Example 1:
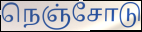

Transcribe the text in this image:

நெஞ்சோடு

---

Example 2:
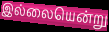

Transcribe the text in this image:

இல்லையென்று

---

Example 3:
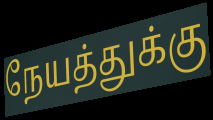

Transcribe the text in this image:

நேயத்துக்கு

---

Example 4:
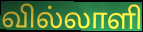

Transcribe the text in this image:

வில்லாளி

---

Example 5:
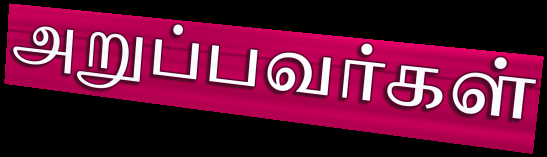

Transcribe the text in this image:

அறுப்பவர்கள்